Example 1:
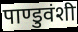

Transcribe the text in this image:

पाण्डुवंशी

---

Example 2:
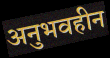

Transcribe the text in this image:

अनुभवहीन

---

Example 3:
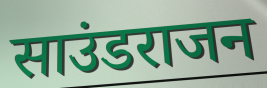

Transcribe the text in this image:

साउंडराजन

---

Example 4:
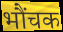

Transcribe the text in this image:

भौंचक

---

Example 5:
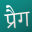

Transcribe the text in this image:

प्रैग